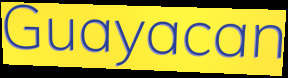
Guayacan